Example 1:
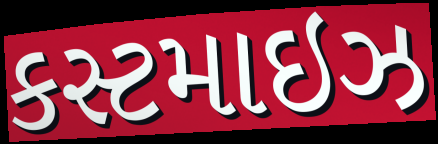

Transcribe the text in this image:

કસ્ટમાઇઝ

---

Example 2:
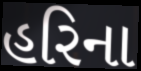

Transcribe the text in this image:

હરિના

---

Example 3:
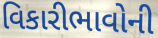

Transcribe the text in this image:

વિકારીભાવોની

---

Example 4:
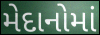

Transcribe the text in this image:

મેદાનોમાં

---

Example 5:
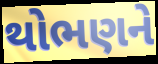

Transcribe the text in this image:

થોભણને